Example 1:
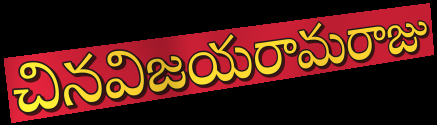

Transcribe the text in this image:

చినవిజయరామరాజు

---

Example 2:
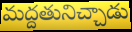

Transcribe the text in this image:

మద్దతునిచ్చాడు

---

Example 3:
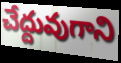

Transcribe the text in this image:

చేద్దువుగాని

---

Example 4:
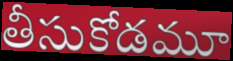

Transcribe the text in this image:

తీసుకోడమూ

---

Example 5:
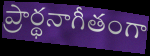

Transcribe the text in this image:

ప్రార్థనాగీతంగా